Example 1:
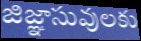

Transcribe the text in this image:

జిజ్ఞాసువులకు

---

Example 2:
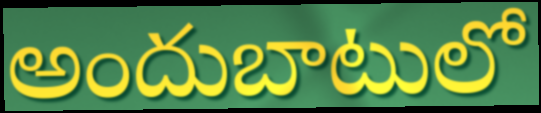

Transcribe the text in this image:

అందుబాటులో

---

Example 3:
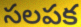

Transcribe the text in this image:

సలపక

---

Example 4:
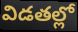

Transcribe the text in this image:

విడతల్లో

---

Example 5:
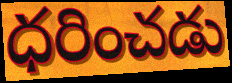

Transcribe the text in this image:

ధరించడు